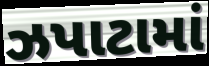
ઝપાટામાં